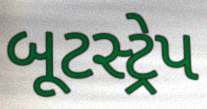
બૂટસ્ટ્રેપ